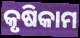
କୃଷିକାମ